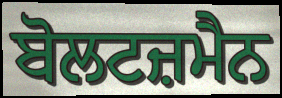
ਬੋਲਟਜ਼ਮੈਨ